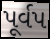
પૂર્વપ